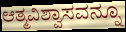
ಆತ್ಮವಿಶ್ವಾಸವನ್ನೂ